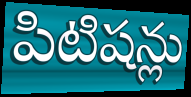
పిటిషన్లు